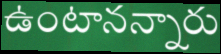
ఉంటానన్నారు